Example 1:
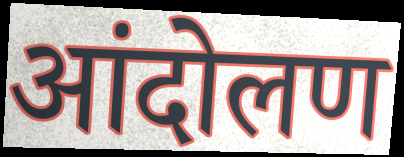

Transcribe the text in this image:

आंदोलण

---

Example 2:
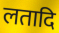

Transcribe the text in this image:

लतादि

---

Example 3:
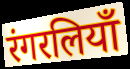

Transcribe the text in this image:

रंगरलियाँ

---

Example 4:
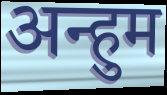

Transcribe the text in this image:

अन्हुम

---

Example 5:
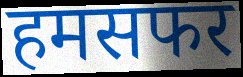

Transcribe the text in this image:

हमसफर